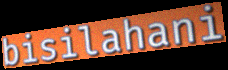
bisilahani